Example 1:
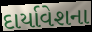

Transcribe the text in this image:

દાર્યાવેશના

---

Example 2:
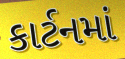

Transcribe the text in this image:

કાર્ટનમાં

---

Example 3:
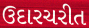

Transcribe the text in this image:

ઉદારચરીત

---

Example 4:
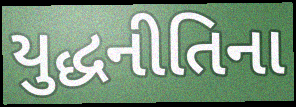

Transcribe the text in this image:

યુદ્ધનીતિના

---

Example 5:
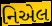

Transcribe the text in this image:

નિએલ